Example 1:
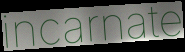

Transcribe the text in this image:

incarnate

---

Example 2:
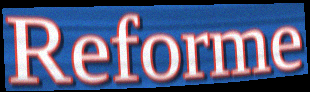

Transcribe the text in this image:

Reforme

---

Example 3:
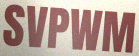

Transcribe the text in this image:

SVPWM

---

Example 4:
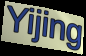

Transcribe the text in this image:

Yijing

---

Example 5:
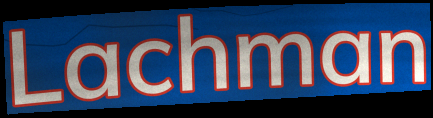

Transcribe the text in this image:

Lachman